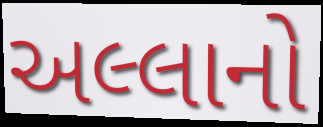
અલ્લાનો